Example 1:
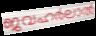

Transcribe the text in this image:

ജവഹർലാൽ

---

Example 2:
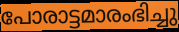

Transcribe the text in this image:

പോരാട്ടമാരംഭിച്ചു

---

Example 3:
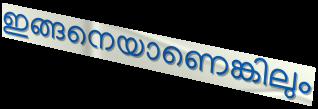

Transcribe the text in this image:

ഇങ്ങനെയാണെങ്കിലും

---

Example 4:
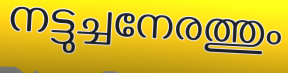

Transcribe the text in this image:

നട്ടുച്ചനേരത്തും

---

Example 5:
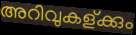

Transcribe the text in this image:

അറിവുകള്ക്കും